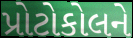
પ્રોટોકોલને